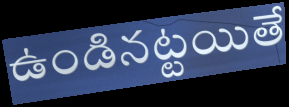
ఉండినట్టయితే